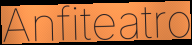
Anfiteatro